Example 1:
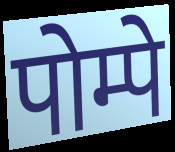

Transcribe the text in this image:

पोम्पे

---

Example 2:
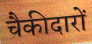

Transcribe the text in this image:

चैकीदारों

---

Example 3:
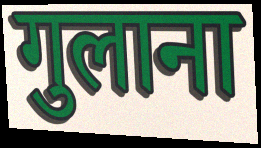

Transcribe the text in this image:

गुलाना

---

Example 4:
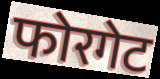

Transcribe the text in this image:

फोरगेट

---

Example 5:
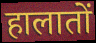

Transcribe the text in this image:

हालातों